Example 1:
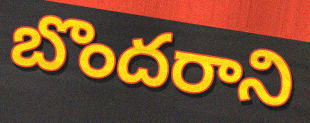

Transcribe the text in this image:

బొందరాని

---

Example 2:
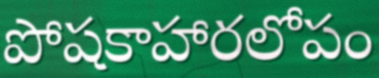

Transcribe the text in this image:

పోషకాహారలోపం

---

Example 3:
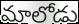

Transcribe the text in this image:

మాలోడు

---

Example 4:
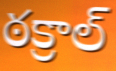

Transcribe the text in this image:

ఠక్రాల్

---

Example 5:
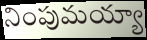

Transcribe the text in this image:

నింపుమయ్యా